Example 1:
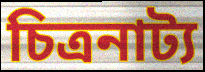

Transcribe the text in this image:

চিত্রনাট্য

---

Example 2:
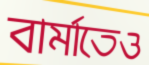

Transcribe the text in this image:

বার্মাতেও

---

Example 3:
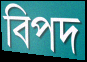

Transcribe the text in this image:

বিপদ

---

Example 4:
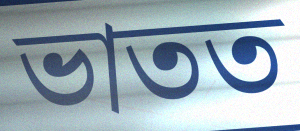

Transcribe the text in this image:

ভাতত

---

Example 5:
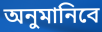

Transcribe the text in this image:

অনুমানিবে